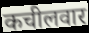
कचीलवार